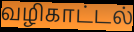
வழிகாட்டல்